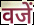
वजें